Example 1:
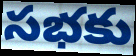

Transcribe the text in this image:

సభకు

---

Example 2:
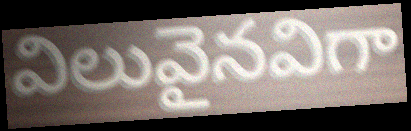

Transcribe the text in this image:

విలువైనవిగా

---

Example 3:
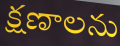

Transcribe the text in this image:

క్షణాలను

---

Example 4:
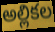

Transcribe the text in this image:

అల్లికల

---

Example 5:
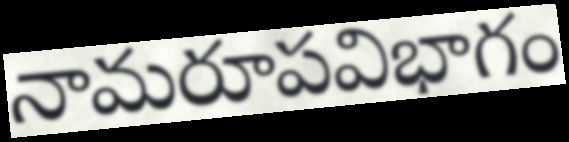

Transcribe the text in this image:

నామరూపవిభాగం